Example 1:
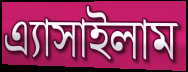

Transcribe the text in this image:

এ্যাসাইলাম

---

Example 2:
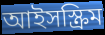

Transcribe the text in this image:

আইসস্ক্রিম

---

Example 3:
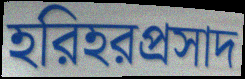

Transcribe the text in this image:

হরিহরপ্রসাদ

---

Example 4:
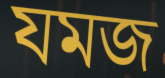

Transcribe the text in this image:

যমজ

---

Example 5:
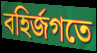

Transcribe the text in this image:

বহির্জগতে